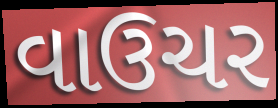
વાઉચર